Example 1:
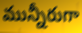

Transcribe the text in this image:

మున్నీరుగా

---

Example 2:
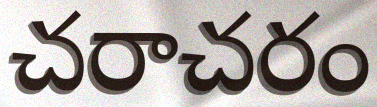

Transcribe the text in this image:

చరాచరం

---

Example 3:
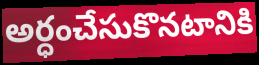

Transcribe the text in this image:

అర్ధంచేసుకొనటానికి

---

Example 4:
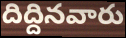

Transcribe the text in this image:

దిద్దినవారు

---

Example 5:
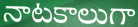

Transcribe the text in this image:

నాటకాలుగా